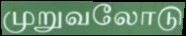
முறுவலோடு